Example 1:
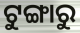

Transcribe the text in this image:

ଟୁଙ୍ଗାରୁ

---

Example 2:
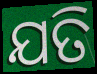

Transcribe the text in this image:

ଯତି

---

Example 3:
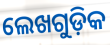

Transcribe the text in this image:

ଲେଖଗୁଡ଼ିକ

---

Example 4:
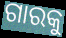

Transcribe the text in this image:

ଗାରକୁ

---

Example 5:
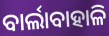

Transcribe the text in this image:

ବାର୍ଲାବାହାଳି